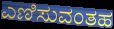
ಎಣಿಸುವಂತಹ